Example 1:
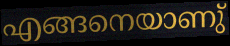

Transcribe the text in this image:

എങ്ങനെയാണു്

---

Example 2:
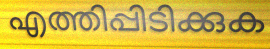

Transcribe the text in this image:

എത്തിപ്പിടിക്കുക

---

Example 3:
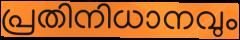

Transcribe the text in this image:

പ്രതിനിധാനവും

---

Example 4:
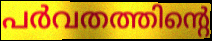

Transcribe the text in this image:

പർവതത്തിന്റെ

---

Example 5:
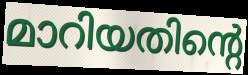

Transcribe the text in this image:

മാറിയതിന്റെ